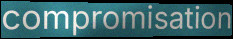
compromisation